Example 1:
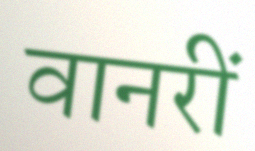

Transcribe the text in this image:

वानरीं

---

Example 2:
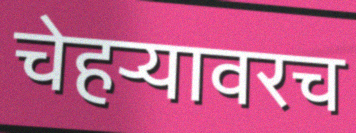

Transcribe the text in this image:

चेहर्‍यावरच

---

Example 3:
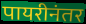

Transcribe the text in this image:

पायरीनंतर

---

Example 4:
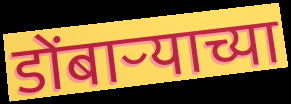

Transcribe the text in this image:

डोंबाऱ्याच्या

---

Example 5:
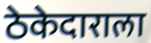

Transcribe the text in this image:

ठेकेदाराला